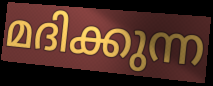
മദിക്കുന്ന